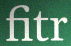
fitr